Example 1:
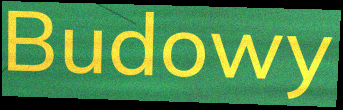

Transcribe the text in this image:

Budowy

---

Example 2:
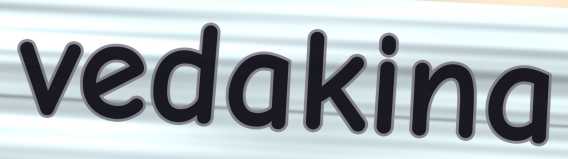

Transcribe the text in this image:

vedakina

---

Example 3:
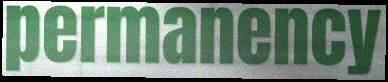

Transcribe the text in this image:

permanency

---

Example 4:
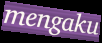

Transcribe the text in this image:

mengaku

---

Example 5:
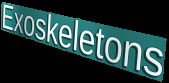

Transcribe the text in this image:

Exoskeletons